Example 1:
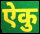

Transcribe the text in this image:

ऐकु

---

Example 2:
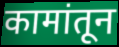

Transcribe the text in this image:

कामांतून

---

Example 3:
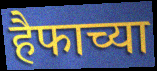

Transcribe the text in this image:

हैफाच्या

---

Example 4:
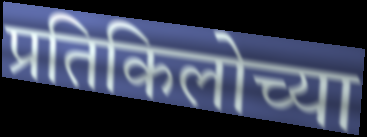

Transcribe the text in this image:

प्रतिकिलोच्या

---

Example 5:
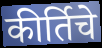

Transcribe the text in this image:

कीर्तिचे